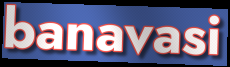
banavasi